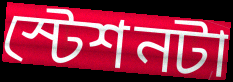
স্টেশনটা